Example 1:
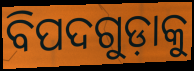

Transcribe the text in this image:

ବିପଦଗୁଡ଼ାକୁ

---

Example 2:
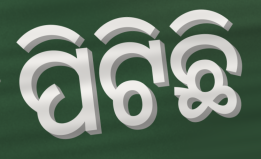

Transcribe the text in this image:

ପିଟିଛି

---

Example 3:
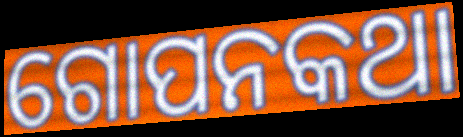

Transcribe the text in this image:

ଗୋପନକଥା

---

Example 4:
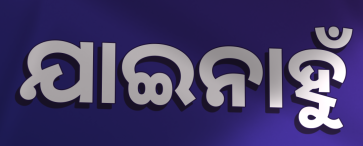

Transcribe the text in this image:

ଯାଇନାହୁଁ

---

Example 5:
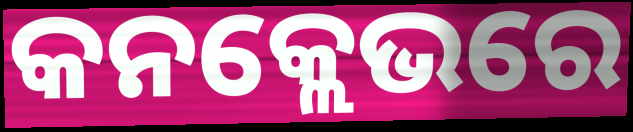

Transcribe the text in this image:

କନକ୍ଲେଭରେ